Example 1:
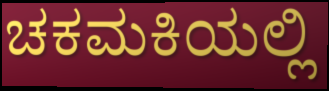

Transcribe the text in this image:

ಚಕಮಕಿಯಲ್ಲಿ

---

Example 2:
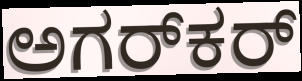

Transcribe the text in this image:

ಅಗರ್‌ಕರ್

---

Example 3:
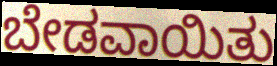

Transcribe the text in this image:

ಬೇಡವಾಯಿತು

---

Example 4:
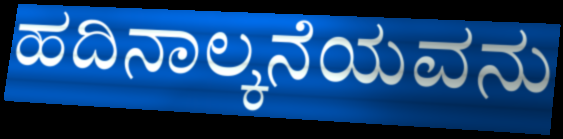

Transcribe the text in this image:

ಹದಿನಾಲ್ಕನೆಯವನು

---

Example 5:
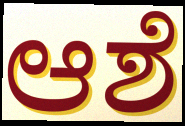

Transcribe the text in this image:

ಆಶೆ